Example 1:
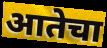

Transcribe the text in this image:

आतेचा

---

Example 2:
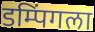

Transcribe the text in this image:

डम्पिंगला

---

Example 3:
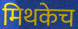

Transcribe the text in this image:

मिथकेच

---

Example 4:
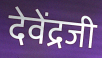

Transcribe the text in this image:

देवेंद्रजी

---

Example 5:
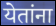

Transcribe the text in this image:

येतांना